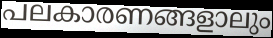
പലകാരണങ്ങളാലും